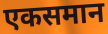
एकसमान